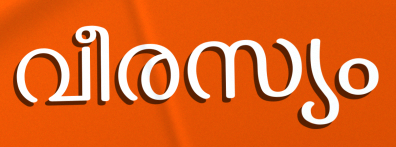
വീരസ്യം